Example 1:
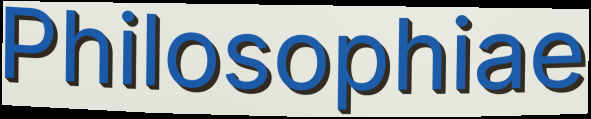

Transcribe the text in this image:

Philosophiae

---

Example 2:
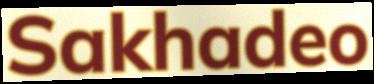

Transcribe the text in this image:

Sakhadeo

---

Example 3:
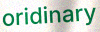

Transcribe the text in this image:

oridinary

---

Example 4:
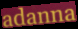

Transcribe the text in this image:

adanna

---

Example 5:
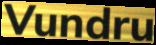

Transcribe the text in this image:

Vundru